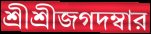
শ্রীশ্রীজগদম্বার